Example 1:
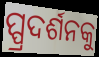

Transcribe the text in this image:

ପ୍ପ୍ରଦର୍ଶନକୁ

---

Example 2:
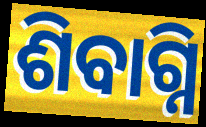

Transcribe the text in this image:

ଶିବାଗ୍ନି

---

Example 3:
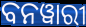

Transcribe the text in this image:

ବନୱାରୀ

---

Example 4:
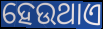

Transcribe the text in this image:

ହେଉଥାଏ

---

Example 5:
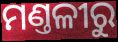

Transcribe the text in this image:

ମଣ୍ତଳୀରୁ